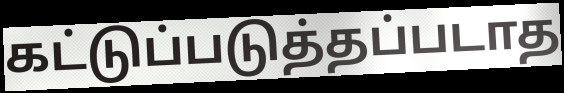
கட்டுப்படுத்தப்படாத